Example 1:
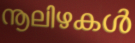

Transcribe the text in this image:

നൂലിഴകൾ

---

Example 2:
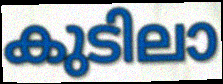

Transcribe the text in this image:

കുടിലാ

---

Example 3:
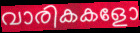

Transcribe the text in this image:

വാരികകളോ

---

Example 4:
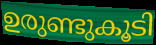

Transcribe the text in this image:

ഉരുണ്ടുകൂടി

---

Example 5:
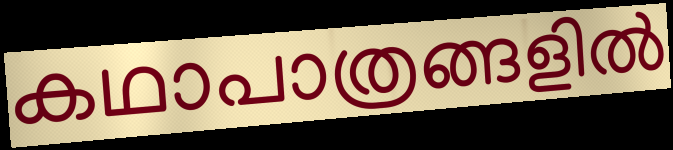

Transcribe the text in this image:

കഥാപാത്രങ്ങളിൽ